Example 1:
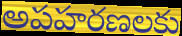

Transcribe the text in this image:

అపహరణలకు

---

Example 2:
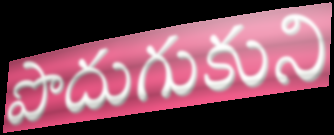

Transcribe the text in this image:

పొదుగుకుని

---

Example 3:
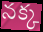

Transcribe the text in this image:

నక్క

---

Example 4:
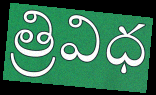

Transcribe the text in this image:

త్రివిధ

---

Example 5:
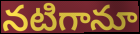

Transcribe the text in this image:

నటిగానూ